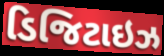
ડિજિટાઇઝ